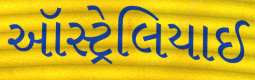
ઑસ્ટ્રેલિયાઈ